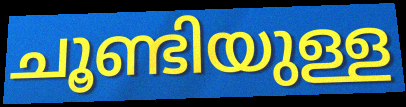
ചൂണ്ടിയുള്ള